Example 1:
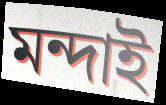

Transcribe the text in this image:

মন্দাই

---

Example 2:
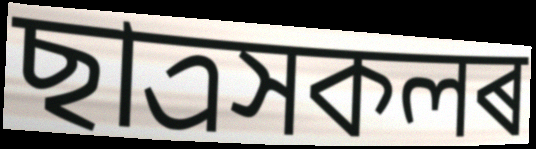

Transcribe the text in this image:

ছাত্ৰসকলৰ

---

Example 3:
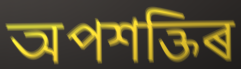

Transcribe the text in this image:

অপশক্তিৰ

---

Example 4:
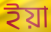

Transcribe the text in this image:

ইয়া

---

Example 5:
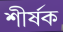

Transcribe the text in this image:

শীৰ্ষক